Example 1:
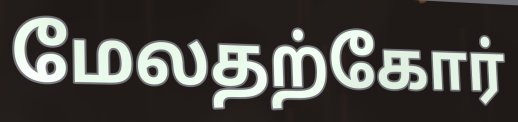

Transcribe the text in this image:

மேலதற்கோர்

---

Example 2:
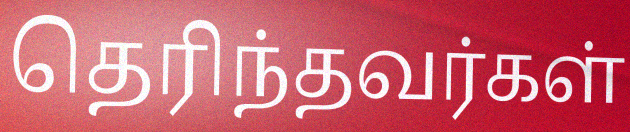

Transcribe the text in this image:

தெரிந்தவர்கள்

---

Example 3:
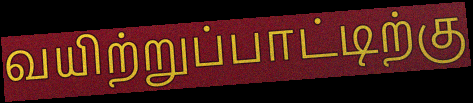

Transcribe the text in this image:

வயிற்றுப்பாட்டிற்கு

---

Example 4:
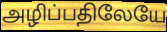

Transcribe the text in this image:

அழிப்பதிலேயே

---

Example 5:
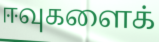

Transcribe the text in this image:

ஈவுகளைக்